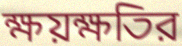
ক্ষয়ক্ষতির